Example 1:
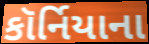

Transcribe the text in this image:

કૉર્નિયાના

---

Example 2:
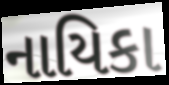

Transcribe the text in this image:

નાયિકા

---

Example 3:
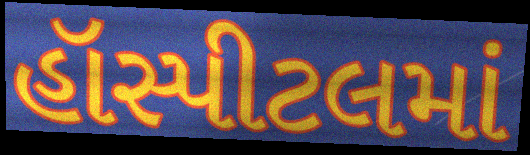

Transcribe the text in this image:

હૉસ્પીટલમાં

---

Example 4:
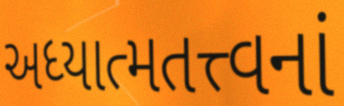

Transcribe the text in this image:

અધ્યાત્મતત્ત્વનાં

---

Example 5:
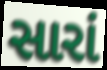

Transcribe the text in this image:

સારાં